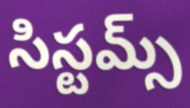
సిస్టమ్స్